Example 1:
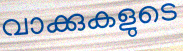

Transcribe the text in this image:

വാക്കുകളുടെ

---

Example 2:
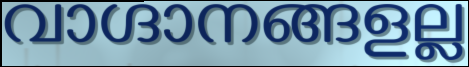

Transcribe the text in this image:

വാഗ്ദാനങ്ങളല്ല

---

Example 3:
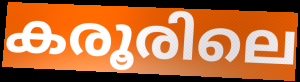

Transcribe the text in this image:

കരൂരിലെ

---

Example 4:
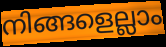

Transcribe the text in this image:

നിങ്ങളെല്ലാം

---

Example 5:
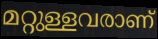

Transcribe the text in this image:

മറ്റുള്ളവരാണ്